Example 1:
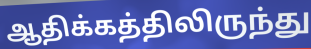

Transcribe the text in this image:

ஆதிக்கத்திலிருந்து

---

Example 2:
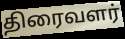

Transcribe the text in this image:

திரைவளர்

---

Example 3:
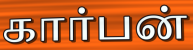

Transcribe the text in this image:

கார்பன்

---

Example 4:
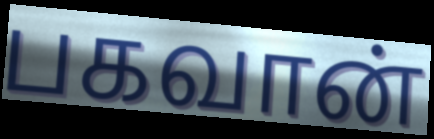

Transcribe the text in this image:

பகவான்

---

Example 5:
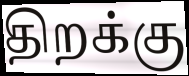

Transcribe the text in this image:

திறக்கு